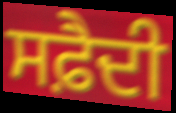
ਸਫ਼ੈਦੀ